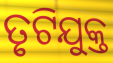
ତୃଟିଯୁକ୍ତ